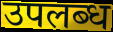
उपलब्‍ध